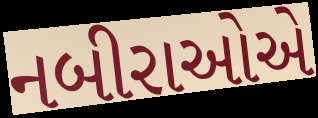
નબીરાઓએ